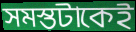
সমস্তটাকেই